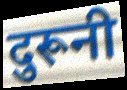
दुरूनी